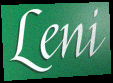
Leni